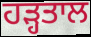
ਹੜ੍ਹਤਾਲ